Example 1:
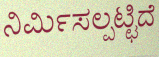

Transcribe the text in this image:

ನಿರ್ಮಿಸಲ್ಪಟ್ಟಿದೆ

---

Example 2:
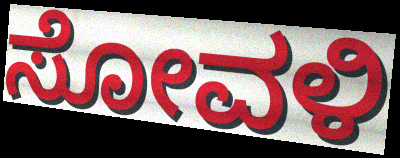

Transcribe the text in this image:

ಸೋವಳಿ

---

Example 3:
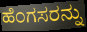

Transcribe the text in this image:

ಹೆಂಗಸರನ್ನು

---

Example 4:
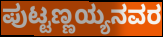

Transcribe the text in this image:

ಪುಟ್ಟಣ್ಣಯ್ಯನವರ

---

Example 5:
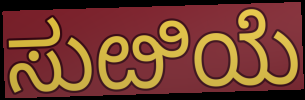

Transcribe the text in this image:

ಸುೞಿಯೆ